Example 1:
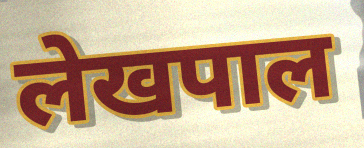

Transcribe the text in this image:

लेखपाल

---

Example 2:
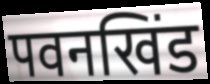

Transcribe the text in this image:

पवनखिंड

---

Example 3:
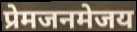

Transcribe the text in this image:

प्रेमजनमेजय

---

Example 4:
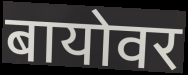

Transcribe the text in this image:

बायोवर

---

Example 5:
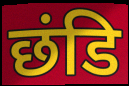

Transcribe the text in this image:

छंडि